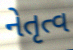
નેતૃત્વ